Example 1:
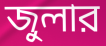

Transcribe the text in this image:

জুলার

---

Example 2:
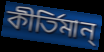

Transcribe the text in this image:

কীর্তিমান্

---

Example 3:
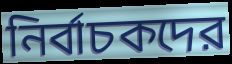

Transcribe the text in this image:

নির্বাচকদের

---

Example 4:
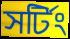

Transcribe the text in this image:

সর্টিং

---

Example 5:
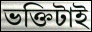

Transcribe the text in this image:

ভক্তিটাই